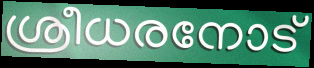
ശ്രീധരനോട്